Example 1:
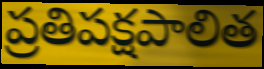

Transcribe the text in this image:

ప్రతిపక్షపాలిత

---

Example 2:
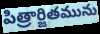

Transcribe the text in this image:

పిత్రార్జితమును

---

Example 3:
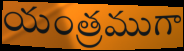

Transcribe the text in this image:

యంత్రముగా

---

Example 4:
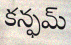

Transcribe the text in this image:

కన్ఫమ్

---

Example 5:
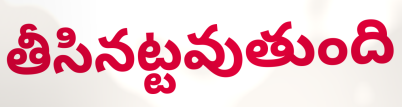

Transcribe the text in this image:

తీసినట్టవుతుంది